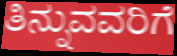
ತಿನ್ನುವವರಿಗೆ